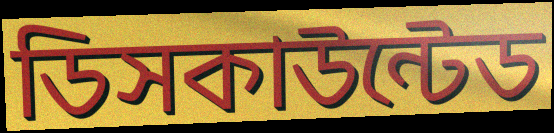
ডিসকাউন্টেড